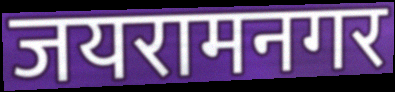
जयरामनगर